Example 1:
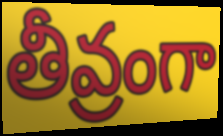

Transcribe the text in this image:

తీవ్రంగా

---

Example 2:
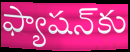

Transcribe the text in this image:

ఫ్యాషన్‌కు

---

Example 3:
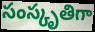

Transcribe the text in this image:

సంస్కృతిగా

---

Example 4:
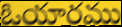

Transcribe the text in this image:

ఓయారము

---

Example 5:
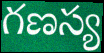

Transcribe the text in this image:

గణస్య